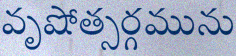
వృషోత్సర్గమును